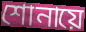
শোনায়ে